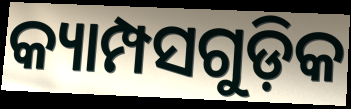
କ୍ୟାମ୍ପସଗୁଡ଼ିକ